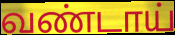
வண்டாய்